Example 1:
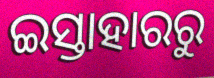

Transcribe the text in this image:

ଇସ୍ତାହାରରୁ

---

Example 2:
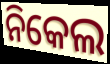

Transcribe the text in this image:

ନିକେଲ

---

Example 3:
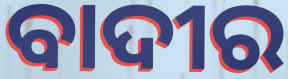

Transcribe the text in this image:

ବାଦୀର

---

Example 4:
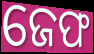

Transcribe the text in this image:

ଜେଫ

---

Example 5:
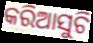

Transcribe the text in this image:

କରିଆସୁଚି